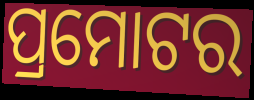
ପ୍ରମୋଟର